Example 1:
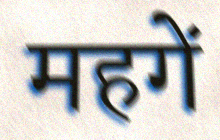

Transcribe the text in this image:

महगें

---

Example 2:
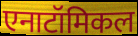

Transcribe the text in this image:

एनाटॉमिकल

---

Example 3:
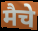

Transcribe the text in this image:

मैचे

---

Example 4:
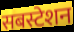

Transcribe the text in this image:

सबस्टेशन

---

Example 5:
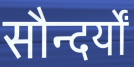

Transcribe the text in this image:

सौन्दर्यों